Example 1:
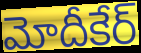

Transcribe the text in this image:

మోదీకేర్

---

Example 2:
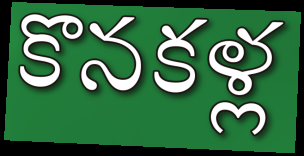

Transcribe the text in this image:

కొనకళ్ల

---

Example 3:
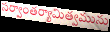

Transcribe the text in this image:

సర్వాంతర్యామిత్వమును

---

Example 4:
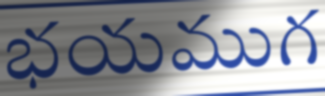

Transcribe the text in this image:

భయముగ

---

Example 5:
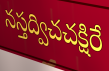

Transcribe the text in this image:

నస్తద్విచచక్షిరే